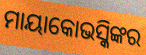
ମାୟାକୋଭସ୍କିଙ୍କର